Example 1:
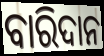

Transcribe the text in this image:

ବାରିଦାନ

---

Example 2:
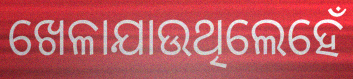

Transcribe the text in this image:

ଖେଳାଯାଉଥିଲେହେଁ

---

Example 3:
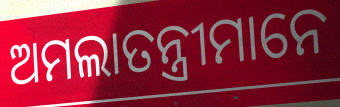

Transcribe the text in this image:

ଅମଲାତନ୍ତ୍ରୀମାନେ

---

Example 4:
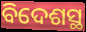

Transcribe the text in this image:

ବିଦେଶସ୍ଥ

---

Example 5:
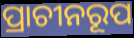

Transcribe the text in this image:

ପ୍ରାଚୀନରୂପ